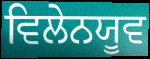
ਵਿਲੇਨਯੂਵ